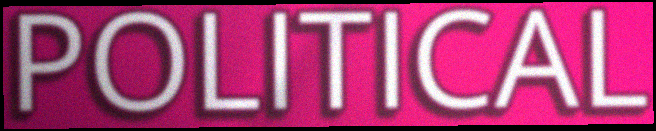
POLITICAL